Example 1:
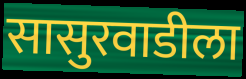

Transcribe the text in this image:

सासुरवाडीला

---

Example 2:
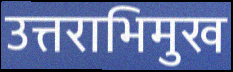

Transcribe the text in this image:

उत्तराभिमुख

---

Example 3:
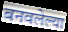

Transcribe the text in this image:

बनवलेल्या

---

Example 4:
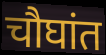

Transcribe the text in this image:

चौघांत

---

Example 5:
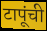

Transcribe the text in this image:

टापूंची